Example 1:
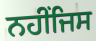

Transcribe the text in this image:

ਨਹੀਂਜਿਸ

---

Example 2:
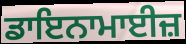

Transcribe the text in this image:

ਡਾਇਨਾਮਾਈਜ਼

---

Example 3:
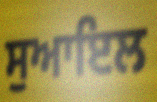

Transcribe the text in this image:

ਸੁਆਇਲ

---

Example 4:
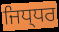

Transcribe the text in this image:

ਜਿਧ੍ਧਰ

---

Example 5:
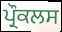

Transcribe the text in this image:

ਪ੍ਰੌਕਲਸ